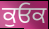
ਕੁਓਕ